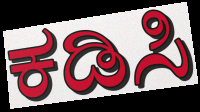
ಕಡಿಸಿ